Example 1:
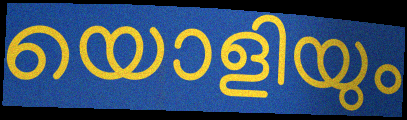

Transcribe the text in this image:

യൊളിയും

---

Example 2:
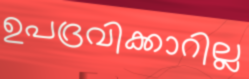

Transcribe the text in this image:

ഉപദ്രവിക്കാറില്ല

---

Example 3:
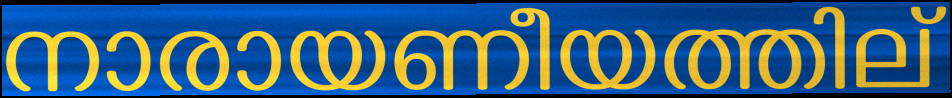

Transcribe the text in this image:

നാരായണീയത്തില്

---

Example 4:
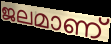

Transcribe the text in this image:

ജലമാണ്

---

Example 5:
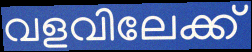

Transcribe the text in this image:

വളവിലേക്ക്